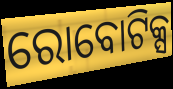
ରୋବୋଟିକ୍ସ